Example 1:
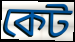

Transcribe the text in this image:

কেট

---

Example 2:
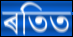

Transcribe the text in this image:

ৰতিত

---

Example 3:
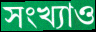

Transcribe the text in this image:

সংখ্যাও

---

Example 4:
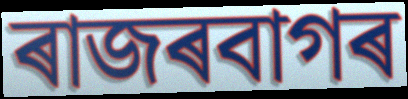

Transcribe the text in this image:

ৰাজৰবাগৰ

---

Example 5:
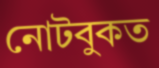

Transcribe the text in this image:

নোটবুকত